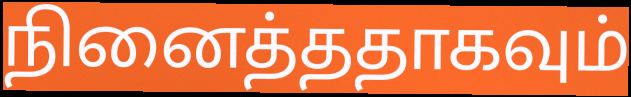
நினைத்ததாகவும்